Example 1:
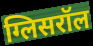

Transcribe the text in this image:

ग्लिसरॉल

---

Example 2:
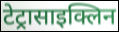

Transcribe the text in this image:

टेट्रासाइक्लिन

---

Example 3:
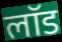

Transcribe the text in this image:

लॉड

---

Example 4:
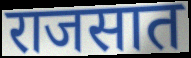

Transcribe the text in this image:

राजसात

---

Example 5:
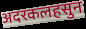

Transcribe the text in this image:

अदरकलहसुन